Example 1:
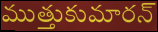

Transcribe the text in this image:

ముత్తుకుమారన్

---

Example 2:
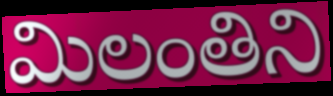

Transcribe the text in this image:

మిలంతిని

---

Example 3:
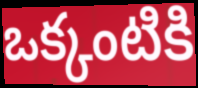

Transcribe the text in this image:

ఒక్కంటికి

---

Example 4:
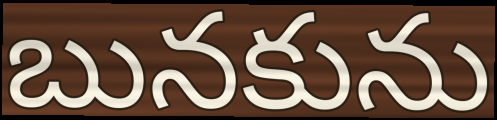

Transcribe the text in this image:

బునకును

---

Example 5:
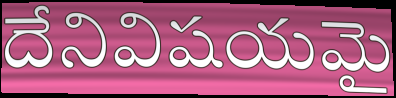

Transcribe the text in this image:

దేనివిషయమై